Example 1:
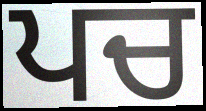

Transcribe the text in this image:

ਪਚ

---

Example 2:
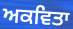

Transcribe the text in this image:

ਅਕਵਿਤਾ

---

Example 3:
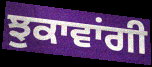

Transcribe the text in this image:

ਝੁਕਾਵਾਂਗੀ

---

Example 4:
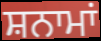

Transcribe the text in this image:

ਸ਼ਨਾਮਾਂ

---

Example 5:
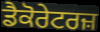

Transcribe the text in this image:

ਡੈਕੋਰੇਟਰਜ਼